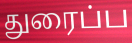
துரைப்ப